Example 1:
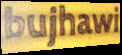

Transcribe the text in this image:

bujhawi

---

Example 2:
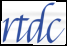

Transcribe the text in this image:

rtdc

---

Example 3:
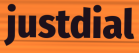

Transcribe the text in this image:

justdial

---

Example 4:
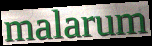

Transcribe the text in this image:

malarum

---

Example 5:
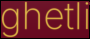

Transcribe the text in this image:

ghetli